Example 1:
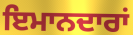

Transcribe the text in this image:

ਇਮਾਨਦਾਰਾਂ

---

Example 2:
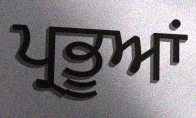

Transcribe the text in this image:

ਪ੍ਰਭੂਆਂ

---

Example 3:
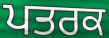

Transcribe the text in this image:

ਪਤਰਕ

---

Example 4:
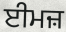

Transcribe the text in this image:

ਈਮਜ਼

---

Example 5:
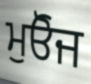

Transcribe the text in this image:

ਮੁਓੋਜ